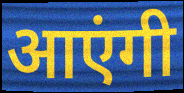
आएंगी